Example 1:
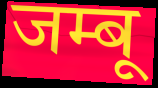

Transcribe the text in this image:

जम्बू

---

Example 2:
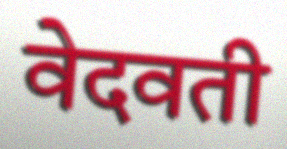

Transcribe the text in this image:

वेदवती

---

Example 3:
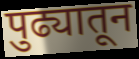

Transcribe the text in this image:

पुढ्यातून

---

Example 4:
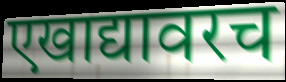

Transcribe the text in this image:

एखाद्यावरच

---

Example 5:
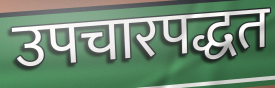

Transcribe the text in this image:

उपचारपद्धत